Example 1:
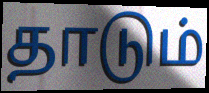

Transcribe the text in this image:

தாடும்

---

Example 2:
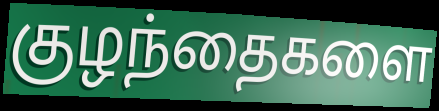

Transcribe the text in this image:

குழந்தைகளை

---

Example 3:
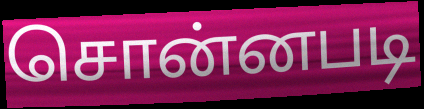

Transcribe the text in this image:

சொன்னபடி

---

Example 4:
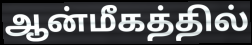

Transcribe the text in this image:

ஆன்மீகத்தில்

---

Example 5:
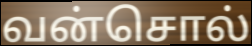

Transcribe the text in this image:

வன்சொல்